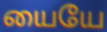
யையே